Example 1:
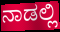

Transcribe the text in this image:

ನಾಡಲ್ಲಿ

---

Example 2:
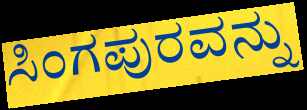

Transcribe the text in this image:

ಸಿಂಗಪುರವನ್ನು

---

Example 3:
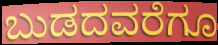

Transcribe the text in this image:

ಬುಡದವರೆಗೂ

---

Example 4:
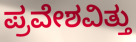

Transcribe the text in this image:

ಪ್ರವೇಶವಿತ್ತು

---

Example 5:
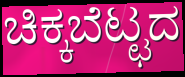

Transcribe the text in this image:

ಚಿಕ್ಕಬೆಟ್ಟದ